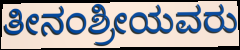
ತೀನಂಶ್ರೀಯವರು